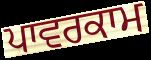
ਪਾਵਰਕਾਮ